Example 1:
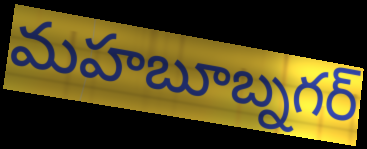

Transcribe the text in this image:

మహబూబ్నగర్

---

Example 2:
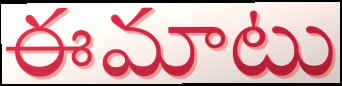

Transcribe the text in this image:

ఈమాటు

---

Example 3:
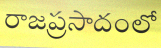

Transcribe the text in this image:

రాజప్రసాదంలో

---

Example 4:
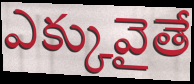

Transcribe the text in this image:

ఎక్కువైతే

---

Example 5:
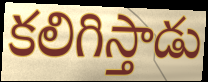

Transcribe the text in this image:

కలిగిస్తాడు